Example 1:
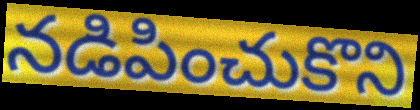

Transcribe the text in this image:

నడిపించుకొని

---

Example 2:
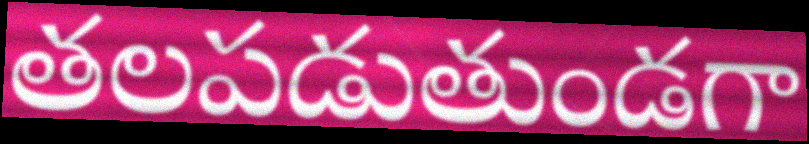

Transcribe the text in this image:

తలపడుతుండగా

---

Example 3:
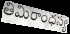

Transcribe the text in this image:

తిమిరాంధస్య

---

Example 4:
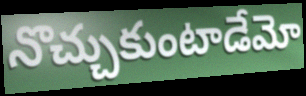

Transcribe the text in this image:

నొచ్చుకుంటాడేమో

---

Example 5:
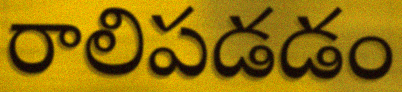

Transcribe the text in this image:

రాలిపడడం